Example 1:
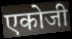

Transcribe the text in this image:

एकोजी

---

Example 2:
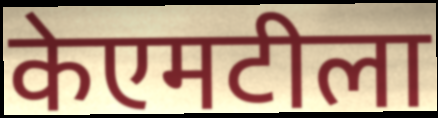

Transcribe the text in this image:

केएमटीला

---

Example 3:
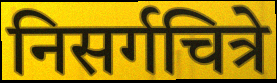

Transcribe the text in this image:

निसर्गचित्रे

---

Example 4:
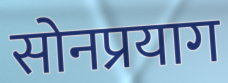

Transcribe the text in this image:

सोनप्रयाग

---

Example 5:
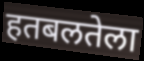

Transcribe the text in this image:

हतबलतेला